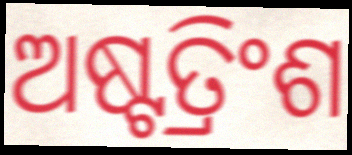
ଅଷ୍ଟତ୍ରିଂଶ